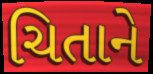
ચિતાને